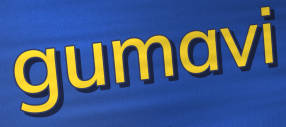
gumavi